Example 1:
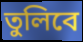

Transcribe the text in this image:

তুলিবে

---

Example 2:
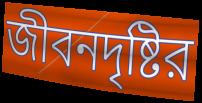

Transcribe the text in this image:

জীবনদৃষ্টির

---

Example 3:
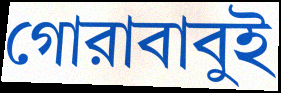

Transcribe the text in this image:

গোরাবাবুই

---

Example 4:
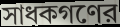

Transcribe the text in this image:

সাধকগণের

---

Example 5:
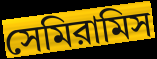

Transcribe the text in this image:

সেমিরামিস